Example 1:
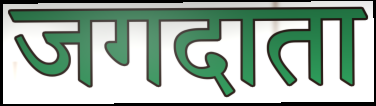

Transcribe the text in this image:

जगदाता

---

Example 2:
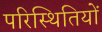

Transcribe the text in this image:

परिस्थितियों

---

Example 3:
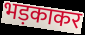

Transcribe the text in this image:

भड़काकर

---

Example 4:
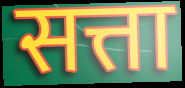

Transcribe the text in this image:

सत्ता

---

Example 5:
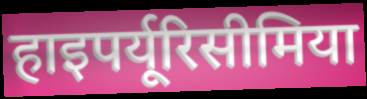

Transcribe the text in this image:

हाइपर्यूरिसीमिया